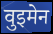
वुइमेन